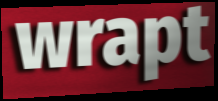
wrapt